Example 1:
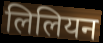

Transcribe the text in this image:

लिलियन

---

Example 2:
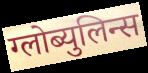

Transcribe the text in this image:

ग्लोब्युलिन्स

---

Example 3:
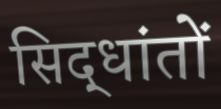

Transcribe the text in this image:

सिद्धांतों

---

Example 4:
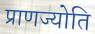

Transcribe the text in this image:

प्राणज्योति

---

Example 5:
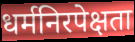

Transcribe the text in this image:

धर्मनिरपेक्षता